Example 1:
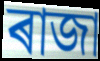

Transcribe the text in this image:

ৰাজা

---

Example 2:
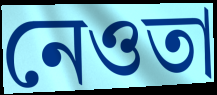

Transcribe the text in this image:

নেওতা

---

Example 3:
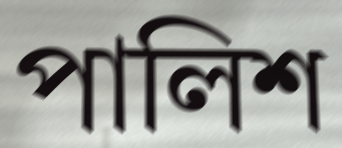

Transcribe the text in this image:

পালিশ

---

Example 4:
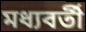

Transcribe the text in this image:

মধ্যবৰ্তী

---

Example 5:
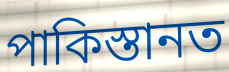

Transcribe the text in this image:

পাকিস্তানত